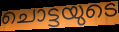
ചൊട്ടയുടെ